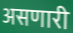
असणारी